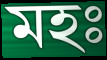
মহঃ